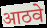
आठवे